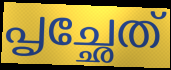
പൃച്ഛേത്